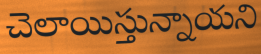
చెలాయిస్తున్నాయని